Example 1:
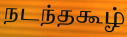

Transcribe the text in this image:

நடந்தகூழ்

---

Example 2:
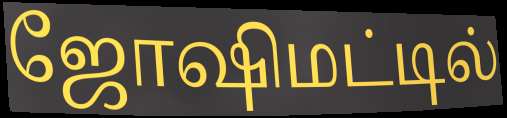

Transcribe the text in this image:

ஜோஷிமட்டில்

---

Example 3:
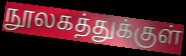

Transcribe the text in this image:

நூலகத்துக்குள்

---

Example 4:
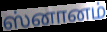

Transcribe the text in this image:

ஸ்னானம்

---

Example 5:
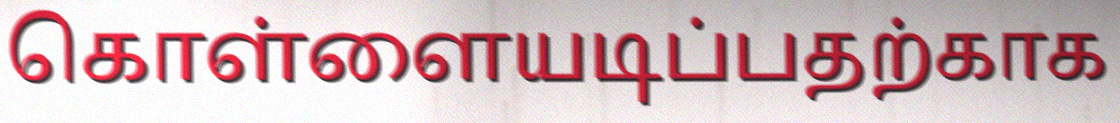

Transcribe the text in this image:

கொள்ளையடிப்பதற்காக